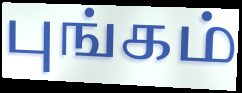
புங்கம்